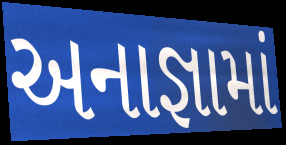
અનાજ્ઞામાં